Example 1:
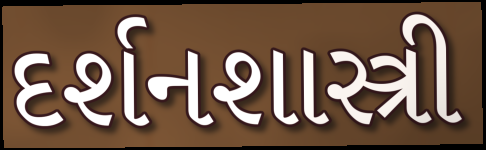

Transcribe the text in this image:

દર્શનશાસ્ત્રી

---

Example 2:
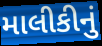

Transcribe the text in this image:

માલીકીનું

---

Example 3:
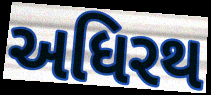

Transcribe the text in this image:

અધિરથ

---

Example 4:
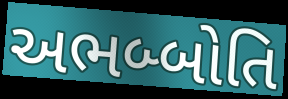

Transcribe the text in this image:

અભબ્બોતિ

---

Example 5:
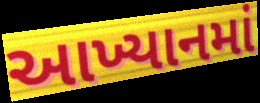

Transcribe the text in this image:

આખ્યાનમાં